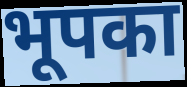
भूपका